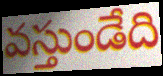
వస్తుండేది